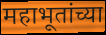
महाभूतांच्या